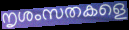
നൃശംസതകളെ